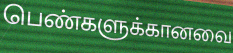
பெண்களுக்கானவை